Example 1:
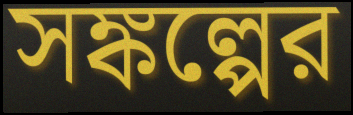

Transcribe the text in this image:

সঙ্কল্পের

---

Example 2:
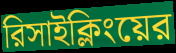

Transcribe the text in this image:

রিসাইক্লিংয়ের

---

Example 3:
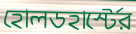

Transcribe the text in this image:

হোলডহার্স্টের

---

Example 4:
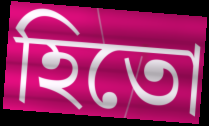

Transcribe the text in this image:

হিতো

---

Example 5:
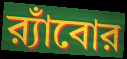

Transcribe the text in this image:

র‍্যাঁবোর